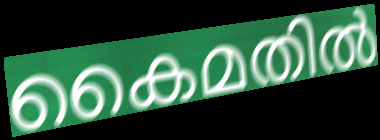
കൈമതിൽ